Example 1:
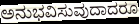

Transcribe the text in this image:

ಅನುಭವಿಸುವುದಾದರೂ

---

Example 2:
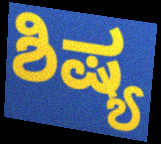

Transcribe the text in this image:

ಶಿಷ್ಯ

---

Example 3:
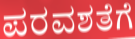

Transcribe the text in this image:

ಪರವಶತೆಗೆ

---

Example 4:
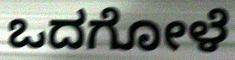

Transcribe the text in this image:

ಒದಗೋಳೆ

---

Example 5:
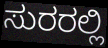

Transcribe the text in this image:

ಸುರರಲ್ಲಿ